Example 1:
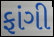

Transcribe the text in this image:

ફાંગી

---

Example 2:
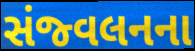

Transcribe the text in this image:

સંજ્વલનના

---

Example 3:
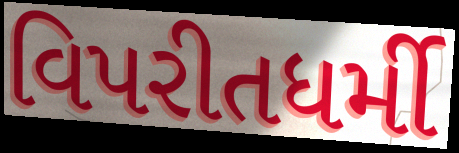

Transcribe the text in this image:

વિપરીતધર્મી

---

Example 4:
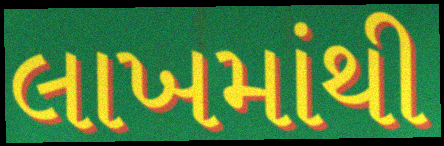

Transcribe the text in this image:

લાખમાંથી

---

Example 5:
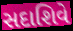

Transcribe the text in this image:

સદાશિવે